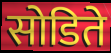
सोडिते